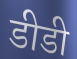
डीडी